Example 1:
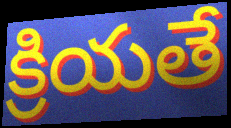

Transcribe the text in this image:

క్రియతే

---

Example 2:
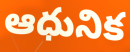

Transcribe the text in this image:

ఆధునిక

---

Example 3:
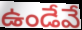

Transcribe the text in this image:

ఉండేవే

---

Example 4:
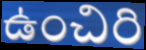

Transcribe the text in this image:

ఉంచిరి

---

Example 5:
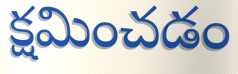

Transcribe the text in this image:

క్షమించడం